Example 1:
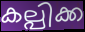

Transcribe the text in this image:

കല്പിക്ക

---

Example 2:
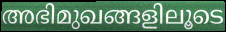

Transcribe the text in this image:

അഭിമുഖങ്ങളിലൂടെ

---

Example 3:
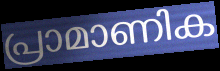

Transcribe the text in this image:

പ്രാമാണിക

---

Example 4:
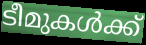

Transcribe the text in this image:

ടീമുകൾക്ക്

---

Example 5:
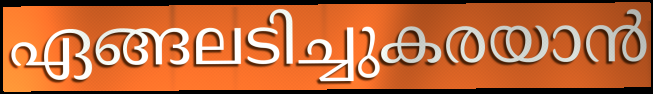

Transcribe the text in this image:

ഏങ്ങലടിച്ചുകരയാൻ